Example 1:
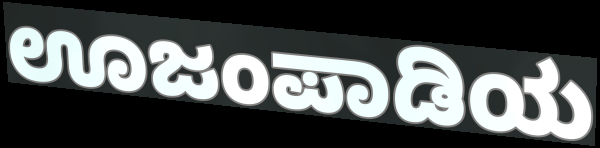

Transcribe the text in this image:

ಊಜಂಪಾಡಿಯ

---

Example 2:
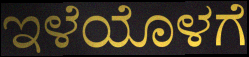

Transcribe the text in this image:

ಇಳೆಯೊಳಗೆ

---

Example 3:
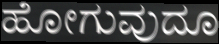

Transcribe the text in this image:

ಹೋಗುವುದೂ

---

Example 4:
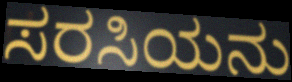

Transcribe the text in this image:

ಸರಸಿಯನು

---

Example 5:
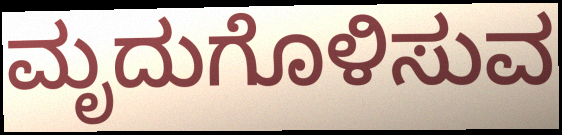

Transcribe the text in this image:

ಮೃದುಗೊಳಿಸುವ